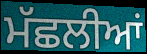
ਮੱਛਲੀਆਂ